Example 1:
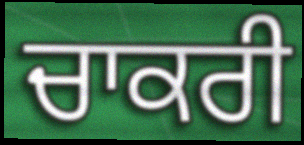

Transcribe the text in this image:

ਚਾਕਰੀ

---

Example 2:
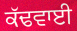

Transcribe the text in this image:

ਕੱਢਵਾਈ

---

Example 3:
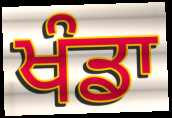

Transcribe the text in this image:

ਖੰਡਾ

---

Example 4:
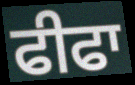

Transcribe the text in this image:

ਫੀਫਾ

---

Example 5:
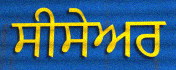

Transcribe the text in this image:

ਸੀਸੇਅਰ